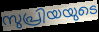
സുപ്രിയയുടെ